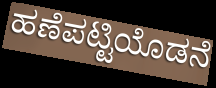
ಹಣೆಪಟ್ಟಿಯೊಡನೆ